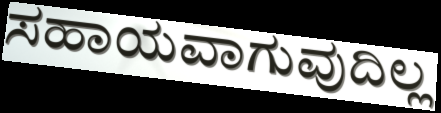
ಸಹಾಯವಾಗುವುದಿಲ್ಲ